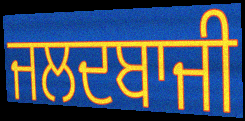
ਜਲਦਬਾਜੀ